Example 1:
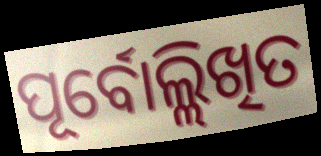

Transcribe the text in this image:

ପୂର୍ବୋଲ୍ଲିଖିତ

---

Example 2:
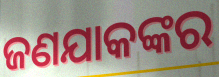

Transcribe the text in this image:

ଜଣଯାକଙ୍କର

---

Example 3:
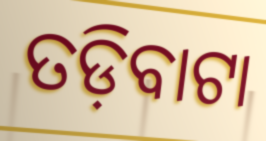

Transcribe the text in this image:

ତଡ଼ିବାଟା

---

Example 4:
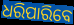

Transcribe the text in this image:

ଧରିପାରିବେ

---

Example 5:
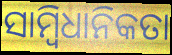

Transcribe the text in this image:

ସାମ୍ବିଧାନିକତା